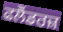
ਫਲੈਂਡਰਜ਼